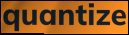
quantize